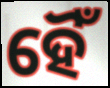
ହୈଁ